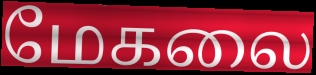
மேகலை